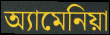
অ্যামেনিয়া